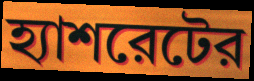
হ্যাশরেটের